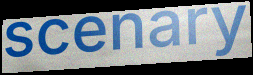
scenary